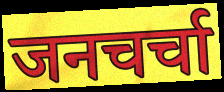
जनचर्चा